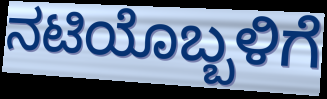
ನಟಿಯೊಬ್ಬಳಿಗೆ